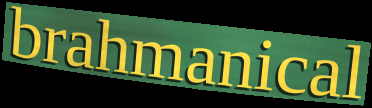
brahmanical